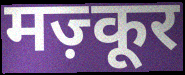
मज़्कूर